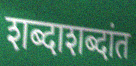
शब्दाशब्दांत